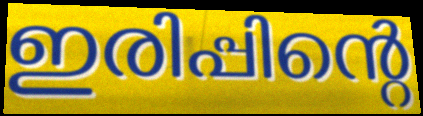
ഇരിപ്പിന്റെ